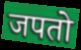
जपतो